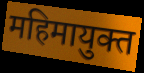
महिमायुक्‍त